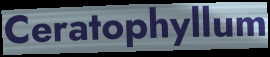
Ceratophyllum